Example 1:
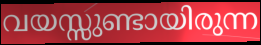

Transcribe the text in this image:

വയസ്സുണ്ടായിരുന്ന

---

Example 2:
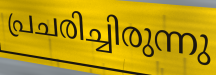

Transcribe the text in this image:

പ്രചരിച്ചിരുന്നു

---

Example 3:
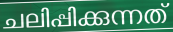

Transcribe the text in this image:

ചലിപ്പിക്കുന്നത്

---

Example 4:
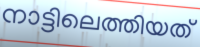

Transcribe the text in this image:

നാട്ടിലെത്തിയത്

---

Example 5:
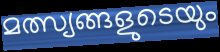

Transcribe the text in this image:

മത്സ്യങ്ങളുടെയും